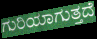
ಗುರಿಯಾಗುತ್ತದೆ